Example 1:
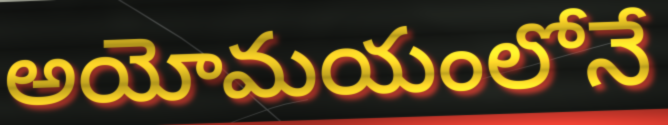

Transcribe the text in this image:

అయోమయంలోనే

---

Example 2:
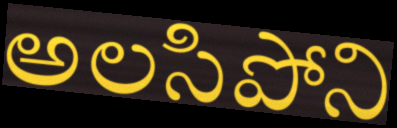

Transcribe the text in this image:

అలసిపోని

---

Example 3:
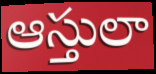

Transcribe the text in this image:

ఆస్తులా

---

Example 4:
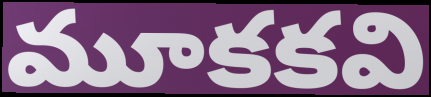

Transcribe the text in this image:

మూకకవి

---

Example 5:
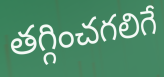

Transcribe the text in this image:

తగ్గించగలిగే